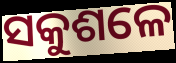
ସକୁଶଳେ